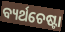
ବ୍ୟର୍ଥଚେଷ୍ଟା